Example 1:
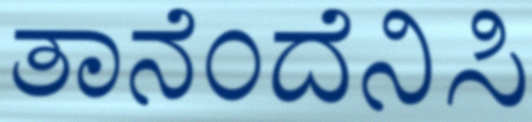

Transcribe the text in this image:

ತಾನೆಂದೆನಿಸಿ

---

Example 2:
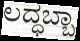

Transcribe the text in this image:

ಲದ್ಧಬ್ಬಾ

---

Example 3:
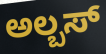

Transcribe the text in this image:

ಅಲ್ಬಸ್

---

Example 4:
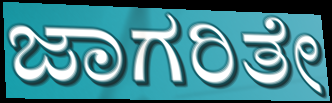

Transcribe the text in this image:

ಜಾಗರಿತೇ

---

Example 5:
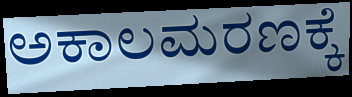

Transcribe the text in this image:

ಅಕಾಲಮರಣಕ್ಕೆ